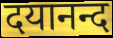
दयानन्द